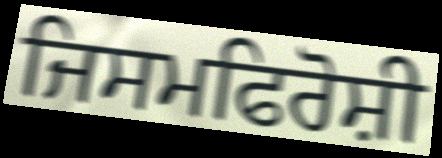
ਜਿਸਮਫਿਰੋਸ਼ੀ